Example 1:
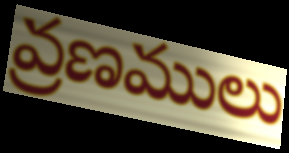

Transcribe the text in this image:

వ్రణములు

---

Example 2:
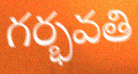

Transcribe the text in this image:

గర్భవతి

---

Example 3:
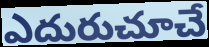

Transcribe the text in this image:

ఎదురుచూచే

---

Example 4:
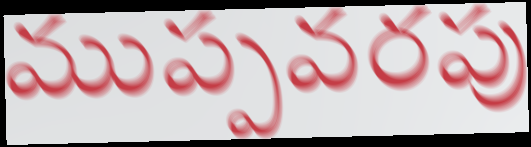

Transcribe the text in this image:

ముప్పవరపు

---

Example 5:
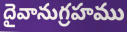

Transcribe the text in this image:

దైవానుగ్రహము